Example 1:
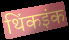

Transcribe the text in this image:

थिंकइंक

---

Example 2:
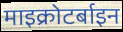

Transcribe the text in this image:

माइक्रोटर्बाइन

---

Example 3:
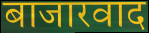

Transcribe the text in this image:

बाजारवाद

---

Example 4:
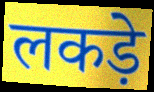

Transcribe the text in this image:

लकड़े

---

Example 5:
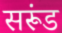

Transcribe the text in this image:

सरूंड